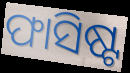
ଫାସିଷ୍ଟ